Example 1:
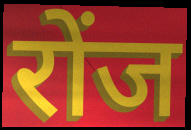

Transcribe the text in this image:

रोंज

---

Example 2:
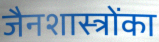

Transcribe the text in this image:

जैनशास्त्रोंका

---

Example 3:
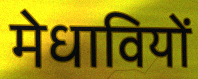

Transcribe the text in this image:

मेधावियों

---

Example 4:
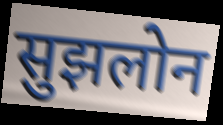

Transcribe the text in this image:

सुझलोन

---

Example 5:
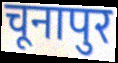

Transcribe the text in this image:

चूनापुर